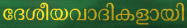
ദേശീയവാദികളായി